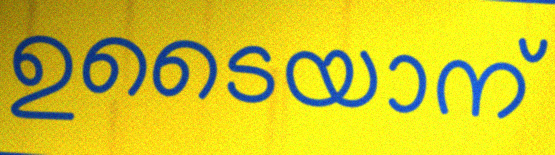
ഉടൈയാന്